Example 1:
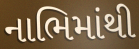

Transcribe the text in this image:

નાભિમાંથી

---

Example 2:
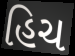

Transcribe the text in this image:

હિચ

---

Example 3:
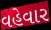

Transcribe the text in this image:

વહેવાર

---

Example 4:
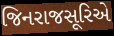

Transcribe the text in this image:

જિનરાજસૂરિએ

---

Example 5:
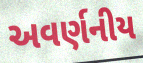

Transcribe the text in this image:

અવર્ણનીય